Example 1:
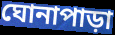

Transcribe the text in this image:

ঘোনাপাড়া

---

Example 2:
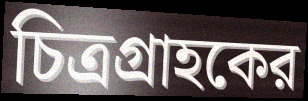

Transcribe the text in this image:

চিত্রগ্রাহকের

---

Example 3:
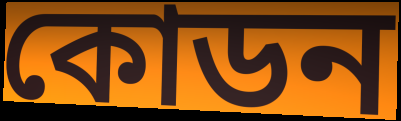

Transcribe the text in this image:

কোডন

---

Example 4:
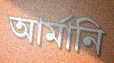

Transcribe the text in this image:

আর্মানি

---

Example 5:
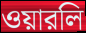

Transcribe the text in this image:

ওয়ারলি